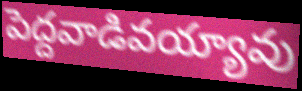
పెద్దవాడివయ్యావు